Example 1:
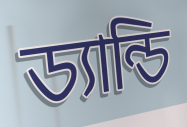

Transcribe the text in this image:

ড্যান্ডি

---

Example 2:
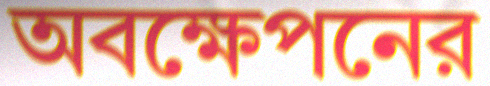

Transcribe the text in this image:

অবক্ষেপনের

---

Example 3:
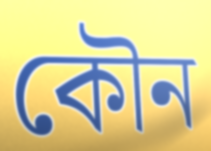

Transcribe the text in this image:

কৌন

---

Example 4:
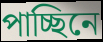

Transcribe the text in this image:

পাচ্ছিনে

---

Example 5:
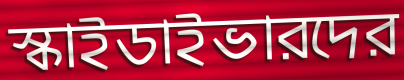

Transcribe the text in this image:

স্কাইডাইভারদের